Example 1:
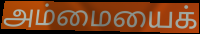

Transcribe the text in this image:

அம்மையைக்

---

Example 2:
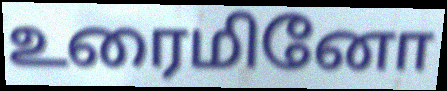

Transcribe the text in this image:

உரைமினோ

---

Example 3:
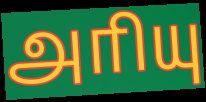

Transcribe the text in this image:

அரியு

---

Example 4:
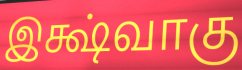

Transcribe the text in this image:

இக்ஷ்வாகு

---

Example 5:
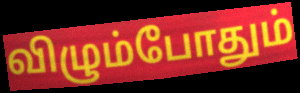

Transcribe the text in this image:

விழும்போதும்